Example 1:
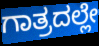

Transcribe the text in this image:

ಗಾತ್ರದಲ್ಲೇ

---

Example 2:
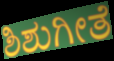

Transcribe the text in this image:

ಶಿಶುಗೀತೆ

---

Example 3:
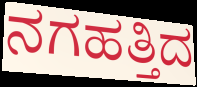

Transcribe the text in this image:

ನಗಹತ್ತಿದ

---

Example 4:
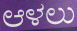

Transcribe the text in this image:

ಆಳಲು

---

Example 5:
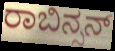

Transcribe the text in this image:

ರಾಬಿನ್ಸನ್